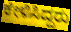
ಕೇಳಿಸಿದ್ದರು